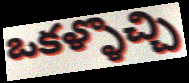
ఒకళ్ళొచ్చి